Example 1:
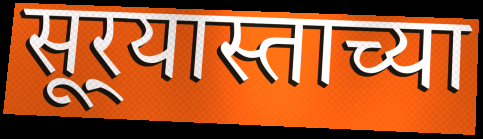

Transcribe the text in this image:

सूर्यास्ताच्या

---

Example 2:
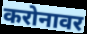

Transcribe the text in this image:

करोनावर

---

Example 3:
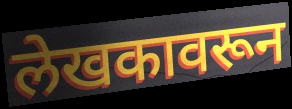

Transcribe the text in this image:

लेखकावरून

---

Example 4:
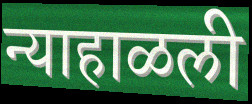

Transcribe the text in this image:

न्याहाळली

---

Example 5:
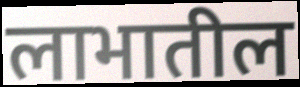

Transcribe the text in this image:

लाभातील